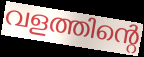
വളത്തിന്റെ